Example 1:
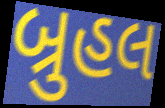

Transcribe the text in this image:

બ્રુહલ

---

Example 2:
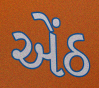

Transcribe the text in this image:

એંઠ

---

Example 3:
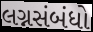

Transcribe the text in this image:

લગ્નસંબંધો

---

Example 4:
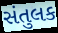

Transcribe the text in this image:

સંતુલક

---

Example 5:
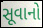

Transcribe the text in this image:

સૂવાનો